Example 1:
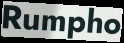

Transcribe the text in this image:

Rumpho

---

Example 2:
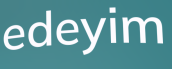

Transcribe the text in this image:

edeyim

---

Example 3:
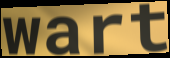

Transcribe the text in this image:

wart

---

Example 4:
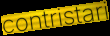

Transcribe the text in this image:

contristari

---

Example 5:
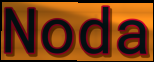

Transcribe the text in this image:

Noda